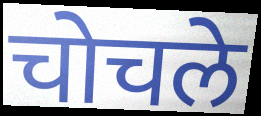
चोचले